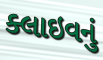
ક્લાઇવનું